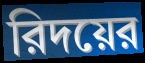
রিদয়ের